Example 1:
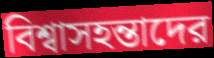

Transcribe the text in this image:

বিশ্বাসহন্তাদের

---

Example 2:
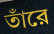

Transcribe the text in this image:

তাঁরে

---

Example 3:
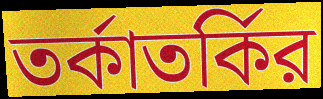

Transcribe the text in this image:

তর্কাতর্কির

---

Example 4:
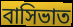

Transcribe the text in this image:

বাসিভাত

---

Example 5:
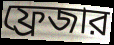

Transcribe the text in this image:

ফ্রেজার